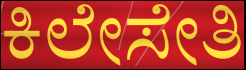
ಕಿಲೇಸೇತಿ